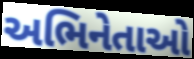
અભિનેતાઓ